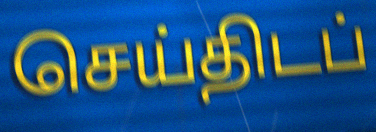
செய்திடப்